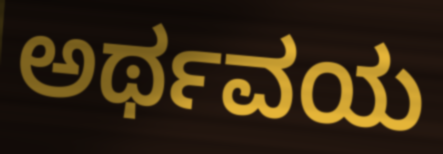
ಅರ್ಥವಯ